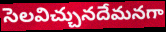
సెలవిచ్చునదేమనగా